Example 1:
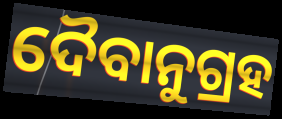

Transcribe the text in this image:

ଦୈବାନୁଗ୍ରହ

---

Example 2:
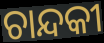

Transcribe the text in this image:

ଚାନ୍ଦକୀ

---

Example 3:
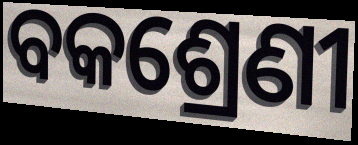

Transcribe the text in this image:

ବକଶ୍ରେଣୀ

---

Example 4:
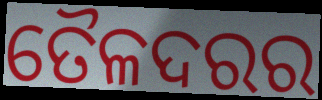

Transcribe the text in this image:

ତୈଳଦରର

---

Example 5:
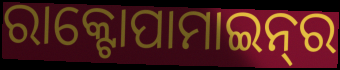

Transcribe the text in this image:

ରାକ୍ଟୋପାମାଇନ୍‌ର